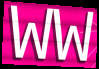
WW